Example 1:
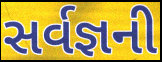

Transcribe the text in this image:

સર્વજ્ઞની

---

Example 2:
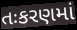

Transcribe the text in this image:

તઃકરણમાં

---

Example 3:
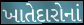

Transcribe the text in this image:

ખાતેદારોનાં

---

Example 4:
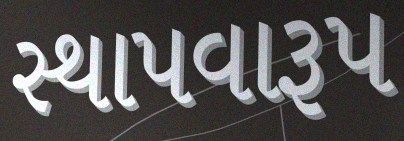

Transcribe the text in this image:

સ્થાપવારૂપ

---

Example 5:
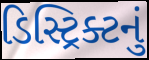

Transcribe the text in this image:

ડિસ્ટ્રિક્ટનું